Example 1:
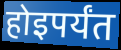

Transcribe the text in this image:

होइपर्यंत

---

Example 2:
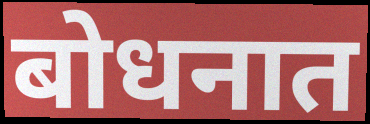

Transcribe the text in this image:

बोधनात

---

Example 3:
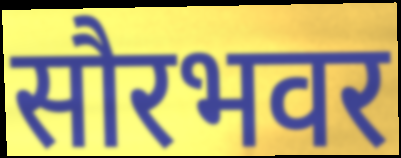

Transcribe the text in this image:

सौरभवर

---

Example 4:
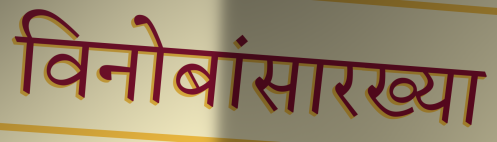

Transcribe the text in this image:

विनोबांसारख्या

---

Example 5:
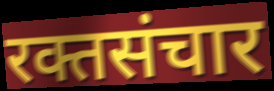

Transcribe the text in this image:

रक्तसंचार